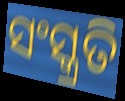
ସଂସ୍କ୍ରତି